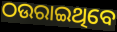
ଠଉରାଇଥିବେ